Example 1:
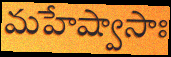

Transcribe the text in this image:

మహేష్వాసాః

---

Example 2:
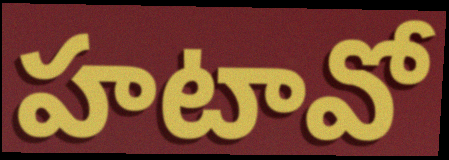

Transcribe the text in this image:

హటావో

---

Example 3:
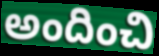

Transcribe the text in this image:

అందించి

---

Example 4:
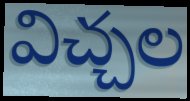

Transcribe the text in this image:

విచ్చల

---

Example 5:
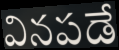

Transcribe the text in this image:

వినపడే